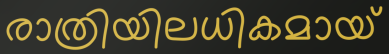
രാത്രിയിലധികമായ്